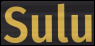
Sulu